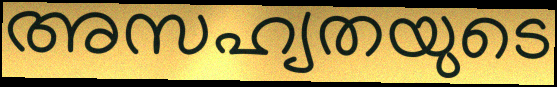
അസഹ്യതയുടെ